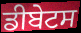
ਡੀਬੇਟਸ